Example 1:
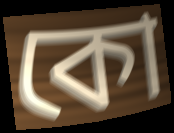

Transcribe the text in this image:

কো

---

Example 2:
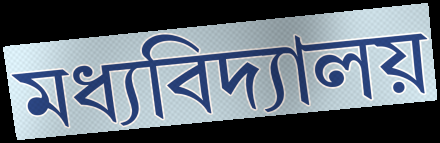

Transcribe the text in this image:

মধ্যবিদ্যালয়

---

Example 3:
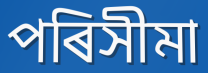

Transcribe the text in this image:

পৰিসীমা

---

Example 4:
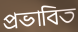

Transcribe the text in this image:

প্ৰভাবিত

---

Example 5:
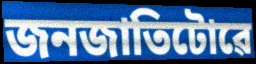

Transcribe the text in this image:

জনজাতিটোৱে